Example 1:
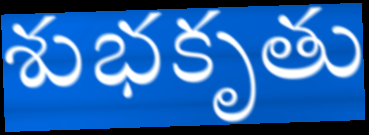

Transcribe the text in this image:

శుభకృతు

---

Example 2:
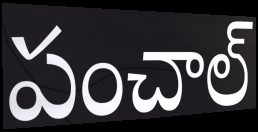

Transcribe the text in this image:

పంచాల్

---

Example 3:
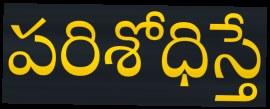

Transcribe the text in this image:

పరిశోధిస్తే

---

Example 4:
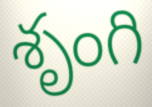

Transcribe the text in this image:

శృంగి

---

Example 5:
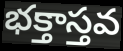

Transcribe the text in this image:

భక్తాస్తవ